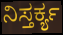
ನಿಸ್ತರ್ಕ್ಯ